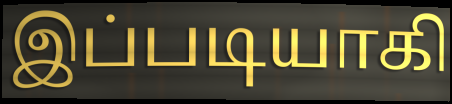
இப்படியாகி